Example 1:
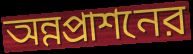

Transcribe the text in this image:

অন্নপ্রাশনের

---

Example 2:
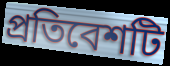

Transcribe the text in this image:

প্রতিবেশটি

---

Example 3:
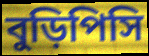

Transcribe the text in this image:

বুড়িপিসি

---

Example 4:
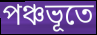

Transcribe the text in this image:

পঞ্চভূতে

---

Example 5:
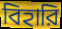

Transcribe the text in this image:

বিহারি